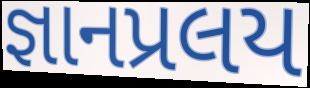
જ્ઞાનપ્રલય